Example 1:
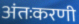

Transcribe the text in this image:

अंतःकरणी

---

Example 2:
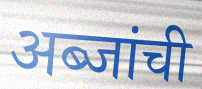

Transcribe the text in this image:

अब्जांची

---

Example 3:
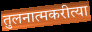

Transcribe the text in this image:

तुलनात्मकरीत्या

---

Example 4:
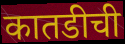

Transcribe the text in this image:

कातडीची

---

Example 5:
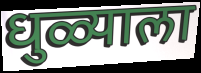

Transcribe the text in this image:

धुळ्याला